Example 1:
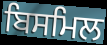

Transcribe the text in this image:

ਬਿਸਮਿਲ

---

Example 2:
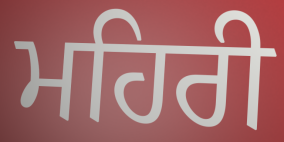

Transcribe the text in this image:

ਮਹਿਰੀ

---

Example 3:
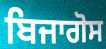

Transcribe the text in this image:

ਬਿਜਾਗੋਸ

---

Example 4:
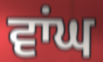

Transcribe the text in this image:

ਵਾਂਘ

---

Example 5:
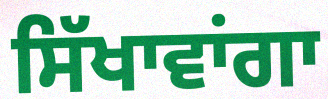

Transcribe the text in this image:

ਸਿੱਖਾਵਾਂਗਾ